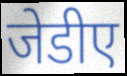
जेडीए